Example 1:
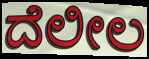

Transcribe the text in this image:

ದೆಲೀಲ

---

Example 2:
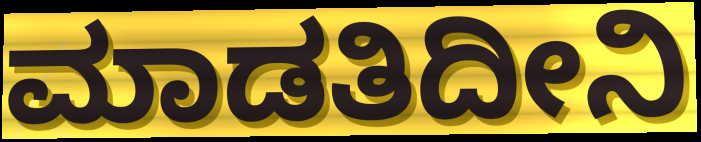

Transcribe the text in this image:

ಮಾಡತಿದೀನಿ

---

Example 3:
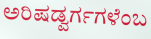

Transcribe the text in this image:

ಅರಿಷಡ್ವರ್ಗಗಳೆಂಬ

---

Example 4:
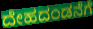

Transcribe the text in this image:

ದೇಹದಂಡನೆಗೆ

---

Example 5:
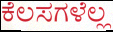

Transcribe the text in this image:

ಕೆಲಸಗಳೆಲ್ಲ